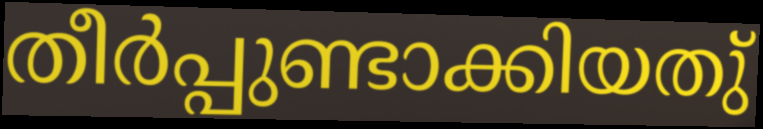
തീർപ്പുണ്ടാക്കിയതു്